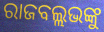
ରାଜବଲ୍ଲଭଙ୍କୁ